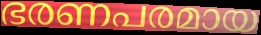
ഭരണപരമായ